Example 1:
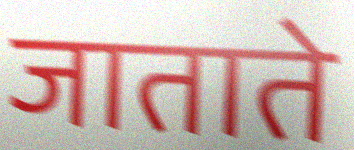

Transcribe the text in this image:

जाताते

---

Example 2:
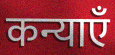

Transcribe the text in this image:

कन्याएँ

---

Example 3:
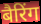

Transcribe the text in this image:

बैरिंग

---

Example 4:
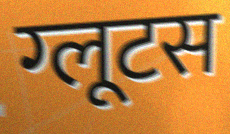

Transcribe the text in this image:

ग्लूटस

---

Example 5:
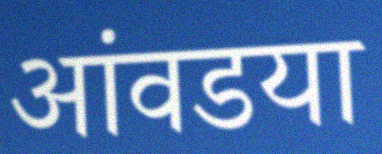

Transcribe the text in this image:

आंवडया